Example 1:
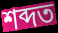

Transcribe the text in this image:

শব্দত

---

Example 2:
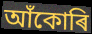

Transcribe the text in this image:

আঁকোৰি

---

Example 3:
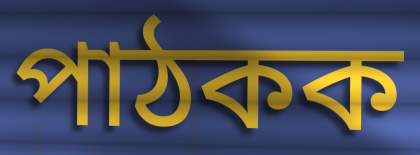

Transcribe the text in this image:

পাঠকক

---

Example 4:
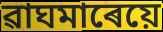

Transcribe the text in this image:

ৱাঘমাৰেয়ে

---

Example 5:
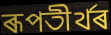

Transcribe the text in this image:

ৰূপতীৰ্থৰ